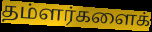
தம்ளர்களைக்